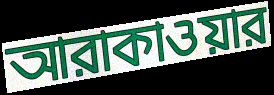
আরাকাওয়ার